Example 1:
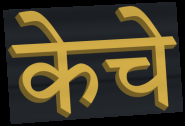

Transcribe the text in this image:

केचे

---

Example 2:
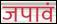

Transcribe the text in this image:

जपावं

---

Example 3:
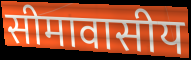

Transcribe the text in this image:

सीमावासीय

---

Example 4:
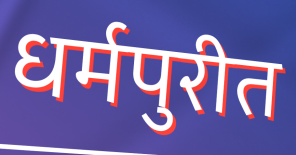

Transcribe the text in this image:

धर्मपुरीत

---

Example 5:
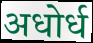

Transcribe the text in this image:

अधोर्ध